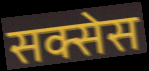
सक्सेस